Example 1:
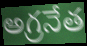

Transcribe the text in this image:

అగ్రనేత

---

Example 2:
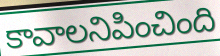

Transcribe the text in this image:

కావాలనిపించింది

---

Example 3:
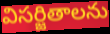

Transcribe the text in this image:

విసర్జితాలను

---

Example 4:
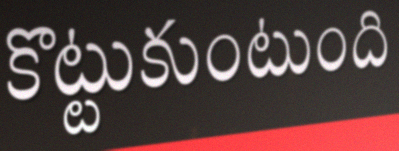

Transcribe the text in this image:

కొట్టుకుంటుంది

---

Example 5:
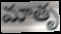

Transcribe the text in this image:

మాతృ